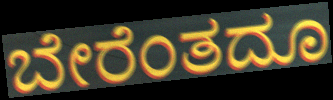
ಬೇರೆಂತದೂ